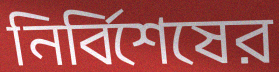
নির্বিশেষের